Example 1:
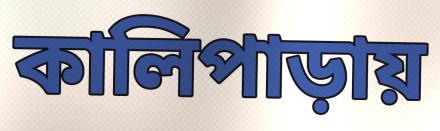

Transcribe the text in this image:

কালিপাড়ায়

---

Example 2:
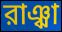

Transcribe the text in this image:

রাঞ্ঝা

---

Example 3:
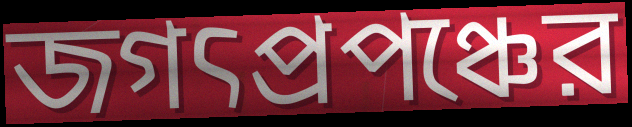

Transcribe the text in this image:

জগৎপ্রপঞ্চের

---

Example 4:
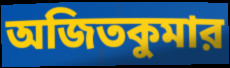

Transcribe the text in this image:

অজিতকুমার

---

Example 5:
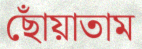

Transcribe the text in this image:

ছোঁয়াতাম